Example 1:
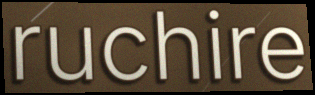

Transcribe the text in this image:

ruchire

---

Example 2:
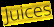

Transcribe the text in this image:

Juices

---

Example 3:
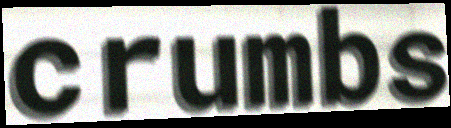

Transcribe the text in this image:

crumbs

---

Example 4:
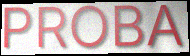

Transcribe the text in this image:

PROBA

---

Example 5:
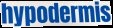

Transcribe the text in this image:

hypodermis